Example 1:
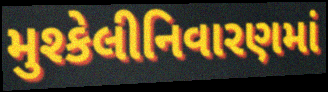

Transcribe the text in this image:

મુશ્કેલીનિવારણમાં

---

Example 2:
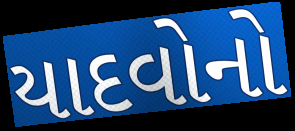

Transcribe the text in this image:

યાદવોનો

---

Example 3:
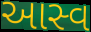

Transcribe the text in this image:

આસ્વ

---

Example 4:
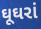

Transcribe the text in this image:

ઘૂઘરાં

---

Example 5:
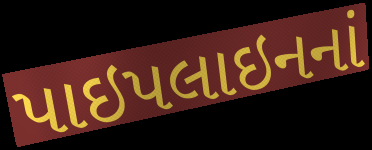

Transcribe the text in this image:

પાઇપલાઇનનાં